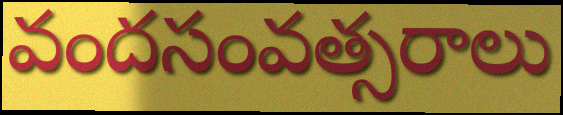
వందసంవత్సరాలు